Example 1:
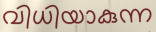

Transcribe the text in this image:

വിധിയാകുന്ന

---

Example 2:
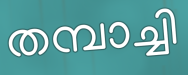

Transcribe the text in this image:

തമ്പാച്ചി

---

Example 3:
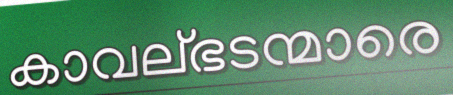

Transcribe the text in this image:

കാവല്ഭടന്മാരെ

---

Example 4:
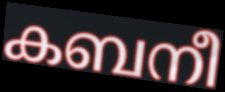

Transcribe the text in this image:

കബനീ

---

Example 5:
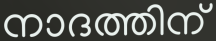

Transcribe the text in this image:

നാദത്തിന്